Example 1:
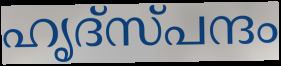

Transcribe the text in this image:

ഹൃദ്സ്പന്ദം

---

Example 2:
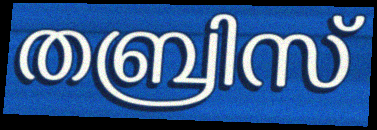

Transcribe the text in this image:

തബ്രിസ്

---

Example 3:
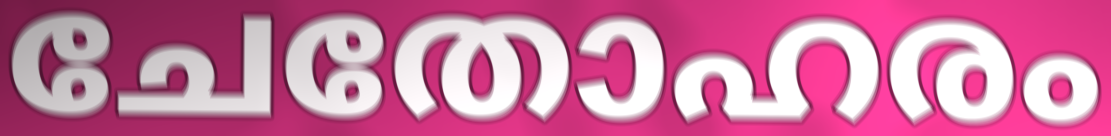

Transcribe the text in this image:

ചേതോഹരം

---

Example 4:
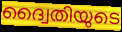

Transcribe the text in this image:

ദ്വൈതിയുടെ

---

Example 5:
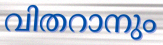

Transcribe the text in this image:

വിതറാനും